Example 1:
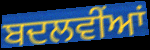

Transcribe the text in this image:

ਬਦਲਵੀਂਆਂ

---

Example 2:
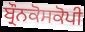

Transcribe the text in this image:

ਬ੍ਰੌਨਕੋਸਕੋਪੀ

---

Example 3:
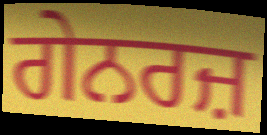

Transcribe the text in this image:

ਗੇਨਰਜ਼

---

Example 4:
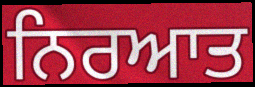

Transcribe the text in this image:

ਨਿਰਆਤ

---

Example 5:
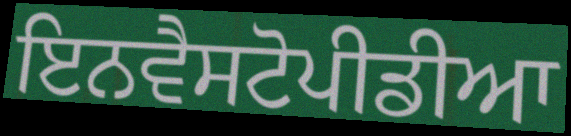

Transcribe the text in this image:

ਇਨਵੈਸਟੋਪੀਡੀਆ